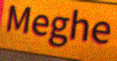
Meghe